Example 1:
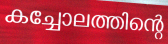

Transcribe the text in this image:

കച്ചോലത്തിന്റെ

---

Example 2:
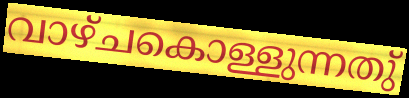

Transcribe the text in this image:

വാഴ്ചകൊള്ളുന്നതു്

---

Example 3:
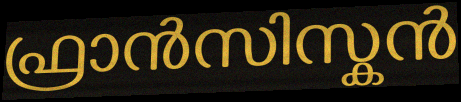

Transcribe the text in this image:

ഫ്രാൻസിസ്കൻ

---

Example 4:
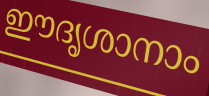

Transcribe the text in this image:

ഈദൃശാനാം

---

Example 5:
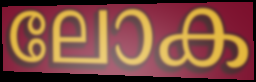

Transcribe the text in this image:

ലോക